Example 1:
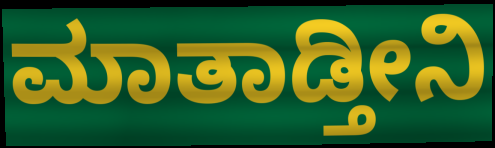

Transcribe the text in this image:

ಮಾತಾಡ್ತೀನಿ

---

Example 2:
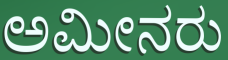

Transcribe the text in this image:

ಅಮೀನರು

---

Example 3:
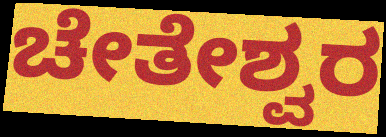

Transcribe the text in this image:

ಚೇತೇಶ್ವರ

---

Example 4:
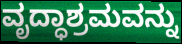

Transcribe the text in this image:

ವೃದ್ಧಾಶ್ರಮವನ್ನು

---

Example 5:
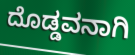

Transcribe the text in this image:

ದೊಡ್ಡವನಾಗಿ